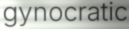
gynocratic